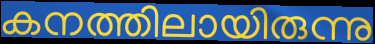
കനത്തിലായിരുന്നു